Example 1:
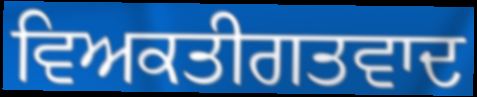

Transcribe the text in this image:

ਵਿਅਕਤੀਗਤਵਾਦ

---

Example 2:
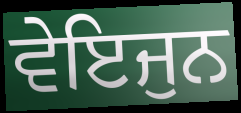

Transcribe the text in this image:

ਵੇਇਜੁਨ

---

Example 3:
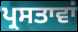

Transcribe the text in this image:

ਪ੍ਰਸਤਾਵਾਂ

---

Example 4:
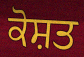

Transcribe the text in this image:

ਕੋਸ਼ਤ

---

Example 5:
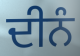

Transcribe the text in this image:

ਦੀਨੰ